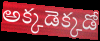
అక్కడెక్కడో